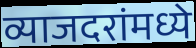
व्याजदरांमध्ये